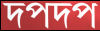
দপদপ